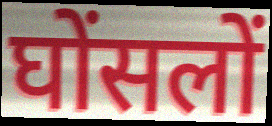
घोंसलों